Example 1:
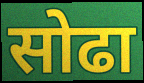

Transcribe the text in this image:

सोढा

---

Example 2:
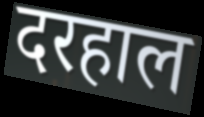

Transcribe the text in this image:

दरहाल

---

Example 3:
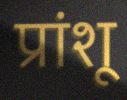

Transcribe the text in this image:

प्रांशू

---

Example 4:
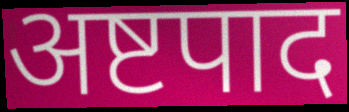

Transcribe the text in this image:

अष्टपाद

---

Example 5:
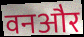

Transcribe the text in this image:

वनऔर